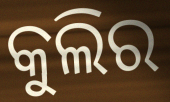
କୁଲିର